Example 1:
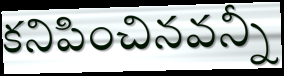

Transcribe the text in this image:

కనిపించినవన్నీ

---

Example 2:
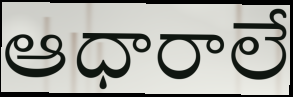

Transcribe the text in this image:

ఆధారాలే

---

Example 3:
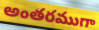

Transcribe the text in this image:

అంతరముగా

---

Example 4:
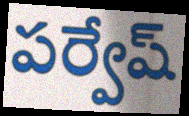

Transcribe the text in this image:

పర్వేష్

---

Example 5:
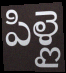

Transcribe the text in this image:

పిళ్లై